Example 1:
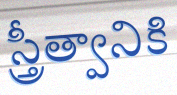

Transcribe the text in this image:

స్త్రీత్వానికి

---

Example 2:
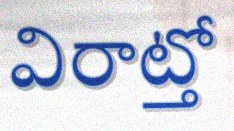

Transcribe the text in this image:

విరాట్తో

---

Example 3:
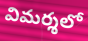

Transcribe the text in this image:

విమర్శలో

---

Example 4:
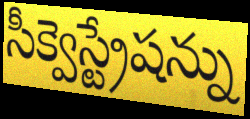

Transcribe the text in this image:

సీక్వెస్ట్రేషన్ను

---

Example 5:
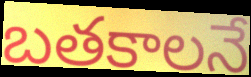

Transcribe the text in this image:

బతకాలనే